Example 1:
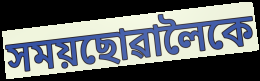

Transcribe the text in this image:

সময়ছোৱালৈকে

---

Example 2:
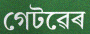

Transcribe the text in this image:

গেটৱেৰ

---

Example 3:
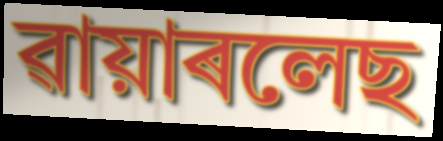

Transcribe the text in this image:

ৱায়াৰলেছ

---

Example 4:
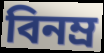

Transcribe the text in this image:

বিনম্ৰ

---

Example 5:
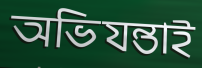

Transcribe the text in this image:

অভিযন্তাই